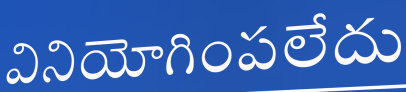
వినియోగింపలేదు